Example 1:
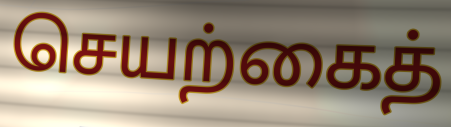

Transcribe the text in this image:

செயற்கைத்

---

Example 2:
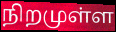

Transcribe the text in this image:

நிறமுள்ள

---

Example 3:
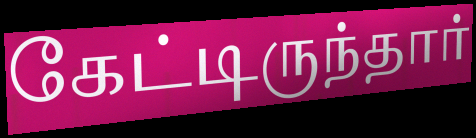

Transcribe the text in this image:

கேட்டிருந்தார்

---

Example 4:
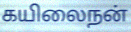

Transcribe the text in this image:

கயிலைநன்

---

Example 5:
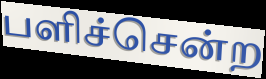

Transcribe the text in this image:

பளிச்சென்ற